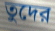
তুদের